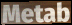
Metab